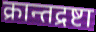
क्रान्तद्रष्टा